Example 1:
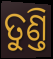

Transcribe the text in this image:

ତୁଣ୍ତି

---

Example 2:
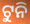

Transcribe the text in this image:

ଟୁନି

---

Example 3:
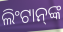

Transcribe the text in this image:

ଲିଂଟାନ୍‍ଙ୍କ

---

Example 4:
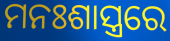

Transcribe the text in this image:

ମନଃଶାସ୍ତ୍ରରେ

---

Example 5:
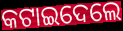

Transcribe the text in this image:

କଟାଇଦେଲେ